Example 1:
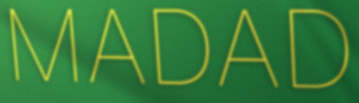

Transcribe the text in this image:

MADAD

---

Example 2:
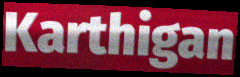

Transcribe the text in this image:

Karthigan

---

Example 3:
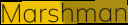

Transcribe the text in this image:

Marshman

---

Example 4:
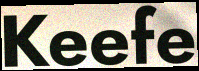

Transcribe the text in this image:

Keefe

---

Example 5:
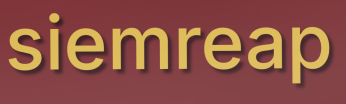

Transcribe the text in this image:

siemreap